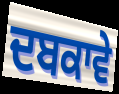
ਦਬਕਾਵੇ